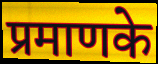
प्रमाणके